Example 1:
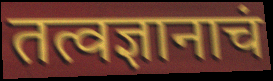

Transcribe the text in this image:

तत्वज्ञानाचं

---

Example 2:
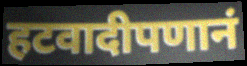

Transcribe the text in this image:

हटवादीपणानं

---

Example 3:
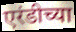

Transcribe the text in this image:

एरंडीच्या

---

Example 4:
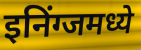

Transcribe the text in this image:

इनिंग्जमध्ये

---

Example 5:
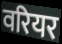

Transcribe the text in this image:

वरियर